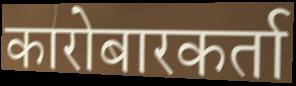
कारोबारकर्ता